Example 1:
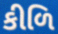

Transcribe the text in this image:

કીળિ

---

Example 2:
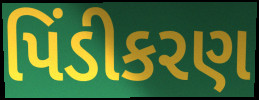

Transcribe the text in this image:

પિંડીકરણ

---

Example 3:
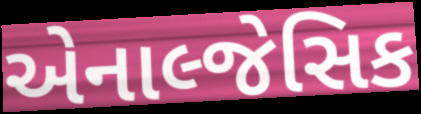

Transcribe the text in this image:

એનાલ્જેસિક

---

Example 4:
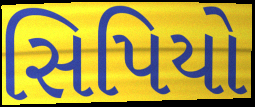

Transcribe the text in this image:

સિપિયો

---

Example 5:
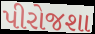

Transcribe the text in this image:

પીરોજશા